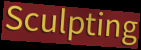
Sculpting